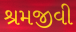
શ્રમજીવી